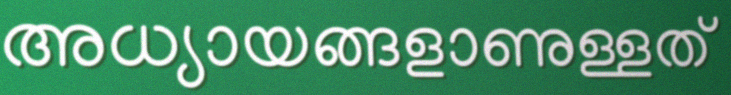
അധ്യായങ്ങളാണുള്ളത്